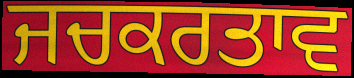
ਜਚਕਰਤਾਵ